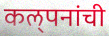
कल्पनांची